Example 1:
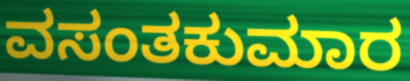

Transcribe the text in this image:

ವಸಂತಕುಮಾರ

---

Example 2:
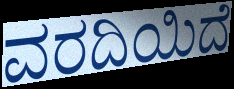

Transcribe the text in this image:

ವರದಿಯಿದೆ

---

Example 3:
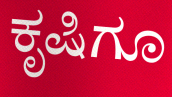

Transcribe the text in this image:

ಕೃಷಿಗೂ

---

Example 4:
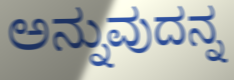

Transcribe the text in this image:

ಅನ್ನುವುದನ್ನ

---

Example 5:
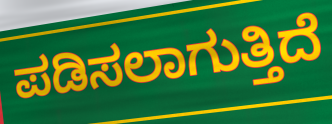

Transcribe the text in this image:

ಪಡಿಸಲಾಗುತ್ತಿದೆ